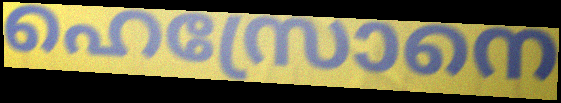
ഹെസ്രോനെ